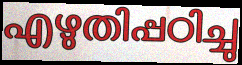
എഴുതിപ്പഠിച്ചു